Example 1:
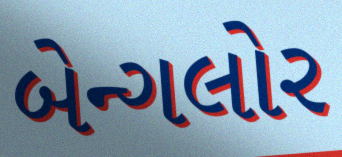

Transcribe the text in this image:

બેન્ગલોર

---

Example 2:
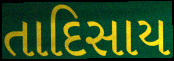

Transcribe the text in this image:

તાદિસાય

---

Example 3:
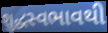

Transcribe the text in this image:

શુદ્ધસ્વભાવથી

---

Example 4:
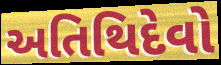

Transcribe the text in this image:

અતિથિદેવો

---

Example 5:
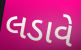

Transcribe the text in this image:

લડાવે